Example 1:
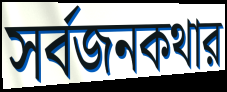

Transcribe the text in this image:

সর্বজনকথার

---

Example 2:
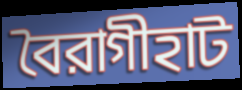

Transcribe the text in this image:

বৈরাগীহাট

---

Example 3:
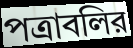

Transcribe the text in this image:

পত্রাবলির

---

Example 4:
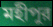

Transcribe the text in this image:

মহীপুর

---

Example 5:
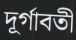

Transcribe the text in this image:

দূর্গাবতী